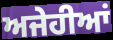
ਅਜੇਹੀਆਂ